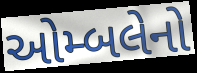
ઓમ્બલેનો